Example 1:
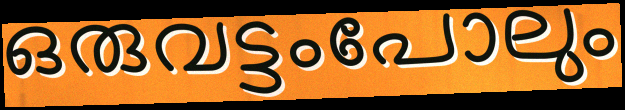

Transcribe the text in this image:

ഒരുവട്ടംപോലും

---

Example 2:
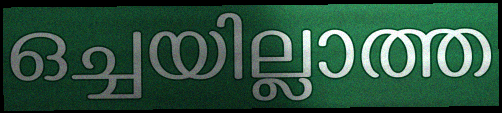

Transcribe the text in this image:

ഒച്ചയില്ലാത്ത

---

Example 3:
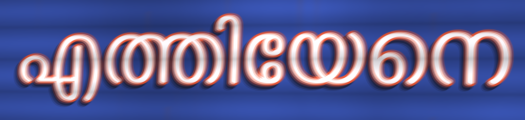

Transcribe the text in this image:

എത്തിയേനെ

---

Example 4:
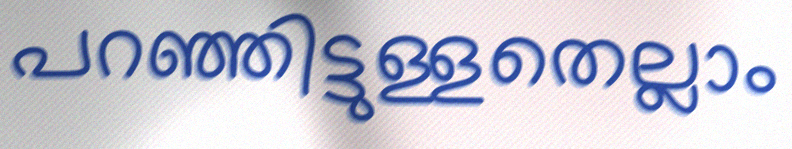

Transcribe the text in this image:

പറഞ്ഞിട്ടുള്ളതെല്ലാം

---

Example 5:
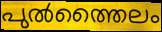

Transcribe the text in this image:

പുൽത്തൈലം